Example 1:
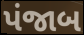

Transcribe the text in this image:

પંજાબ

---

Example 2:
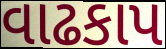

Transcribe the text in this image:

વાઢકાપ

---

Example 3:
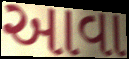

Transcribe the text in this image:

આવા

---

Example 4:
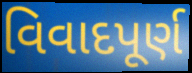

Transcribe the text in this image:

વિવાદપૂર્ણ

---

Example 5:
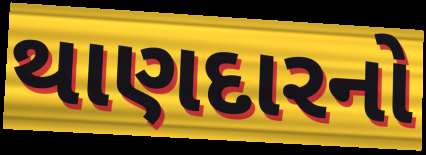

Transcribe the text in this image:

થાણદારનો